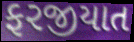
ફરજીયાત